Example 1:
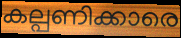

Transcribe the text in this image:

കല്പണിക്കാരെ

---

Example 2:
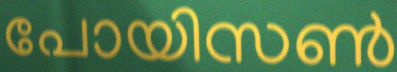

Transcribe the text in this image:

പോയിസൺ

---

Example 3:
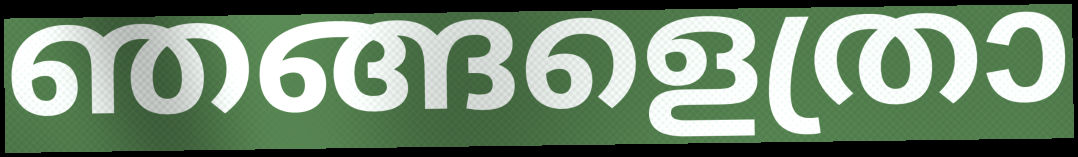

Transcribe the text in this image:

ഞങ്ങളെത്രാ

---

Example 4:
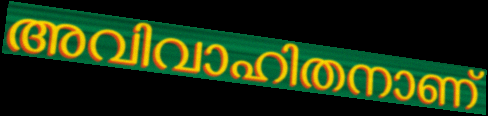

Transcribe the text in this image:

അവിവാഹിതനാണ്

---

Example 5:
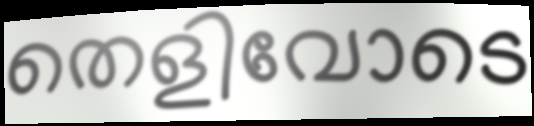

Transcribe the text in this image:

തെളിവോടെ